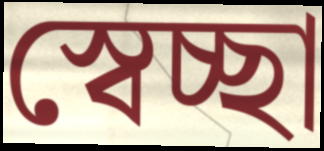
স্বেচ্ছা